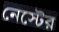
নেস্টের